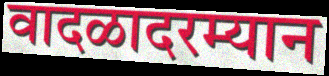
वादळादरम्यान